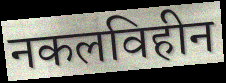
नकलविहीन